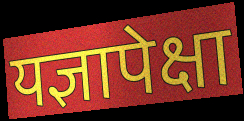
यज्ञापेक्षा